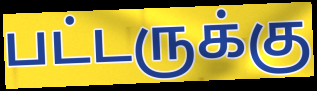
பட்டருக்கு